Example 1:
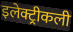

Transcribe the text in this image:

इलेक्ट्रीकली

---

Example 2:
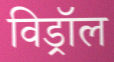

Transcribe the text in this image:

विड्रॉल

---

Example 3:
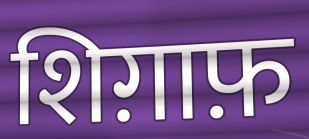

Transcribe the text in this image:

शिग़ाफ़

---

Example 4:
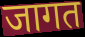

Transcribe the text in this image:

जागत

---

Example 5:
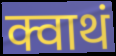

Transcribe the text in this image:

क्वाथं